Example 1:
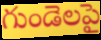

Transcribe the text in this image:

గుండెలపై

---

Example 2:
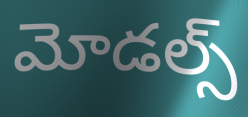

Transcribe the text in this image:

మోడల్స్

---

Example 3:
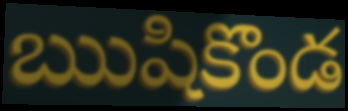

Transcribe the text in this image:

ఋషికొండ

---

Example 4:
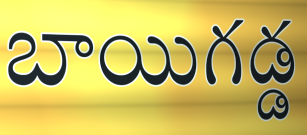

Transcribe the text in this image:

బాయిగడ్డ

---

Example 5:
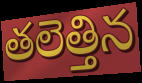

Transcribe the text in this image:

తలెత్తిన